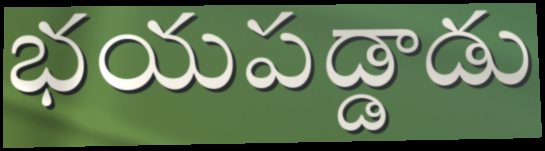
భయపడ్డాడు